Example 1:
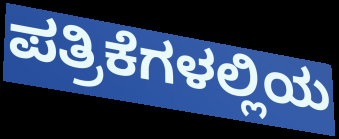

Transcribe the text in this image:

ಪತ್ರಿಕೆಗಳಲ್ಲಿಯ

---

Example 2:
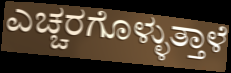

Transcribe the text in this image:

ಎಚ್ಚರಗೊಳ್ಳುತ್ತಾಳೆ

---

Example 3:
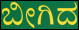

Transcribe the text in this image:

ಬೀಗಿದ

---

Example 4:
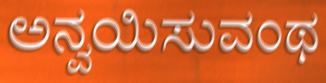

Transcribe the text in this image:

ಅನ್ವಯಿಸುವಂಥ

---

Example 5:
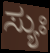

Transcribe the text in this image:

ಸ್ಯುಃ